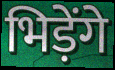
भिड़ेंगे